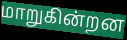
மாறுகின்றன